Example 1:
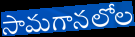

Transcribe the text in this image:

సామగానలోల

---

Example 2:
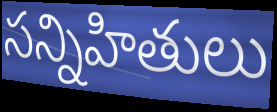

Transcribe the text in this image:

సన్నిహితులు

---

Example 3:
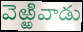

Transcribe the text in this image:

వెఱ్ఱివాడు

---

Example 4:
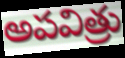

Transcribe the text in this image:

అపవిత్రు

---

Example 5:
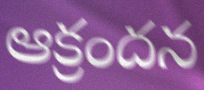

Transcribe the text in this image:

ఆక్రందన